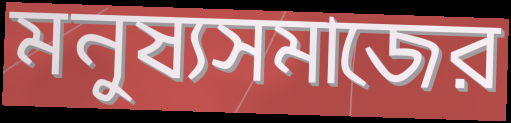
মনুষ্যসমাজের